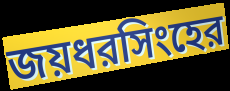
জয়ধরসিংহের